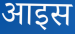
आइस